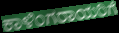
ಕಾಳಿಂಗರಾಯರಿಗೆ